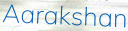
Aarakshan